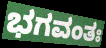
ಭಗವಂತಃ